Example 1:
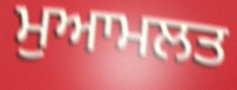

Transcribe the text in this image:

ਮੁਆਮਲਤ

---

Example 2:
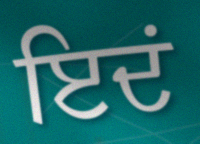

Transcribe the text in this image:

ਇਦਂ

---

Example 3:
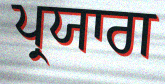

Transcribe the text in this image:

ਪ੍ਰਯਾਗ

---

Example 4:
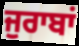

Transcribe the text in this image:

ਜੁਰਾਬਾਂ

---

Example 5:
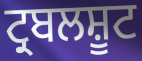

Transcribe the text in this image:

ਟ੍ਰਬਲਸ਼ੂਟ